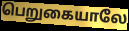
பெறுகையாலே